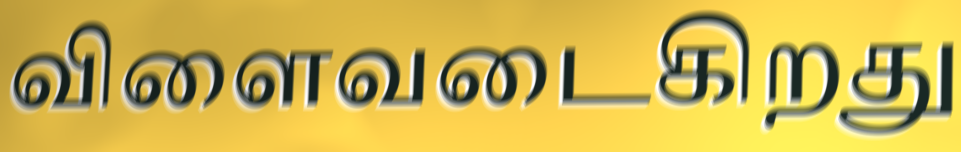
விளைவடைகிறது